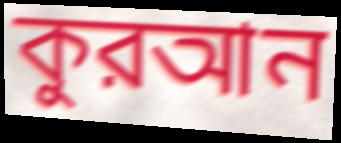
কুরআন